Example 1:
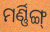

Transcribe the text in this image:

ମର୍ଣ୍ଣିଙ୍ଗ୍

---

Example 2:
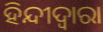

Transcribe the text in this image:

ହିନ୍ଦୀଦ୍ଵାରା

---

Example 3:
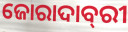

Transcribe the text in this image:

ଜୋରାଦାବ୍‌ରୀ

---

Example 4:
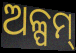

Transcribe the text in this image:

ଅଳ୍ପମ୍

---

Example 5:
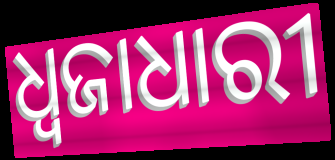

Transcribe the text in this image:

ଧ୍ଵଜାଧାରୀ